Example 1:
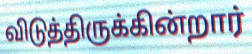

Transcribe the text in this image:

விடுத்திருக்கின்றார்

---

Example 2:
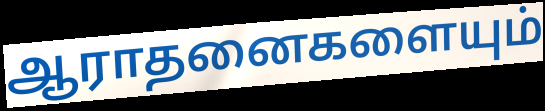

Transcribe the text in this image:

ஆராதனைகளையும்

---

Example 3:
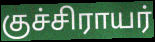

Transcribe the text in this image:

குச்சிராயர்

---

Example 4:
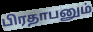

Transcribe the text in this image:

பிரதாபனும்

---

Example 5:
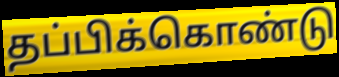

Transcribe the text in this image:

தப்பிக்கொண்டு